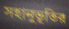
সহানুভূতির